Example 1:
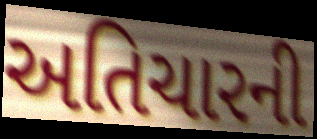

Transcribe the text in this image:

અતિચારની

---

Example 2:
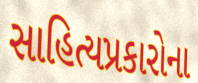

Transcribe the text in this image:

સાહિત્યપ્રકારોના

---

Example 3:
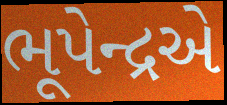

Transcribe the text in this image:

ભૂપેન્દ્રએ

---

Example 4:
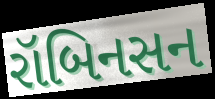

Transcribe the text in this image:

રૉબિનસન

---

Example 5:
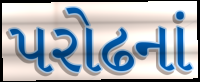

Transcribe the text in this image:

પરોઢનાં